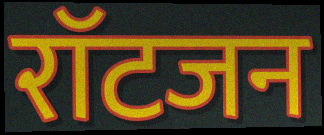
रॉटजन